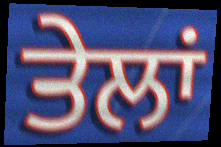
ਤੇਲਾਂ